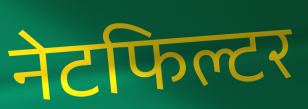
नेटफिल्टर